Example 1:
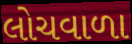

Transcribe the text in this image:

લોચવાળા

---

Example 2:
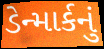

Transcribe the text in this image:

ડેન્માર્કનું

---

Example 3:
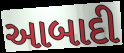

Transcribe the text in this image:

આબાદી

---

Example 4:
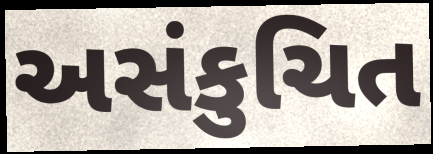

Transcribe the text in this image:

અસંકુચિત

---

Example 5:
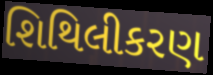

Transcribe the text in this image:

શિથિલીકરણ